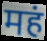
महं